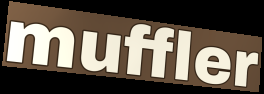
muffler